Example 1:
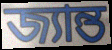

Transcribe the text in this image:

জ্যান্ত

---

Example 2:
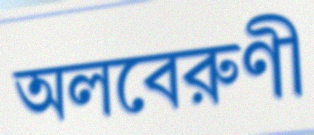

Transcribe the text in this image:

অলবেরুণী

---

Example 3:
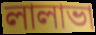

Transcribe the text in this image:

লালাভা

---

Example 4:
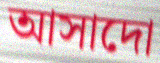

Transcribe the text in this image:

আসাদো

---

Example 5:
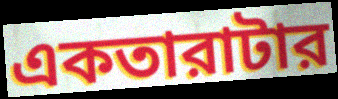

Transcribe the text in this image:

একতারাটার